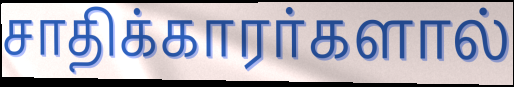
சாதிக்காரர்களால்